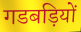
गडबड़ियों